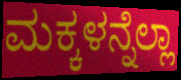
ಮಕ್ಕಳನ್ನೆಲ್ಲಾ